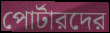
পোর্টারদের